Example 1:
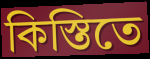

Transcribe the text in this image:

কিস্তিতে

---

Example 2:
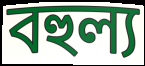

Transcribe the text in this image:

বহুল্য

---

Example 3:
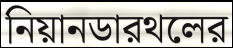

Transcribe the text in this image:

নিয়ানডারথলের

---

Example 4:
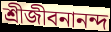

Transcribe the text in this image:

শ্রীজীবনানন্দ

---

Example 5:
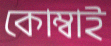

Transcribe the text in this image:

কোম্বাই